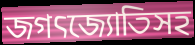
জগৎজ্যোতিসহ